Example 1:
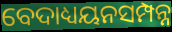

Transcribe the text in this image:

ବେଦାଧ୍ୟୟନସମ୍ପନ୍ନ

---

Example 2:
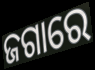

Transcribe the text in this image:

ଜଗାରେ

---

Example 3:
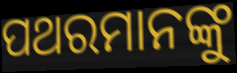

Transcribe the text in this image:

ପଥରମାନଙ୍କୁ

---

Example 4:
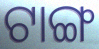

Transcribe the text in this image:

ଟାଙ୍ଗ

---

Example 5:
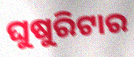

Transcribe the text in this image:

ଘୁଷୁରିଟାର